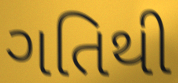
ગતિથી